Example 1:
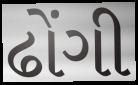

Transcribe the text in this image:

ઢોંગી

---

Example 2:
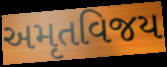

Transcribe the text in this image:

અમૃતવિજય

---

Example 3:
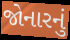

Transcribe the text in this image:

જોનારનું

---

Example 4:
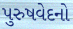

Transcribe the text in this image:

પુરુષવેદનો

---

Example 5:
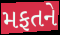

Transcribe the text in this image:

મફતને